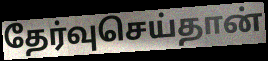
தேர்வுசெய்தான்